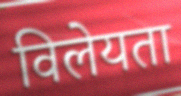
विलेयता